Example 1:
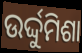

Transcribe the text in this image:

ଉର୍ଦ୍ଦୁମିଶା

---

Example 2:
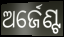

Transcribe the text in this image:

ଅର୍ଜେଣ୍ଟ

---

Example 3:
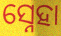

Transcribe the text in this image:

ସ୍ନେହା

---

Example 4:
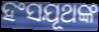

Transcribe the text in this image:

ହଂସଯୂଥଙ୍କ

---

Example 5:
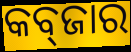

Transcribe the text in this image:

କବ୍‍ଜାର